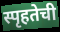
स्पृहतेची